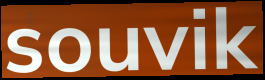
souvik